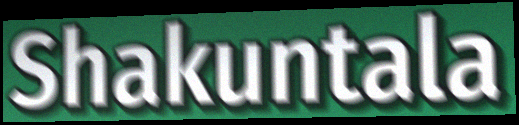
Shakuntala